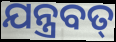
ଯନ୍ତ୍ରବତ୍